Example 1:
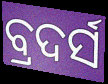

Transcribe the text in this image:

ବ୍ରଦର୍ସ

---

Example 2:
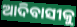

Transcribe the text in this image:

ଆଦିବାସୀକୁ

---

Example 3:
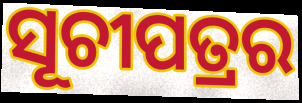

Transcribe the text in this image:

ସୂଚୀପତ୍ରର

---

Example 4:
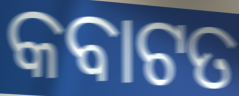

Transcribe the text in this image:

କବାଟତ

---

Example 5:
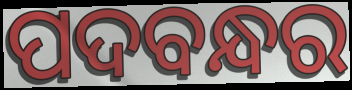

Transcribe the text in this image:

ପଦବନ୍ଧର